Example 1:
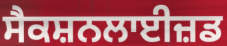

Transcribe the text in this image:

ਸੈਕਸ਼ਨਲਾਈਜ਼ਡ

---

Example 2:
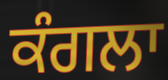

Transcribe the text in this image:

ਕੰਗਲਾ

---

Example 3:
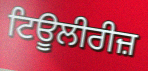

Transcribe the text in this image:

ਟਿਊਲੀਰੀਜ਼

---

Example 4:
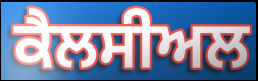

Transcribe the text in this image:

ਕੈਲਸੀਅਲ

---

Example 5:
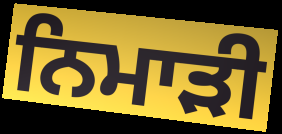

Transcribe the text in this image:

ਨਿਮਾੜੀ